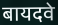
बायदवे